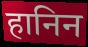
हानिन